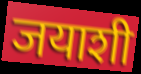
जयाशी